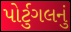
પોર્ટુગલનું